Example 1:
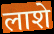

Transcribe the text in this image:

लाशे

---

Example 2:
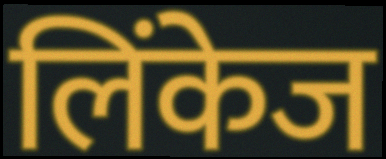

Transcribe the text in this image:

लिंकेज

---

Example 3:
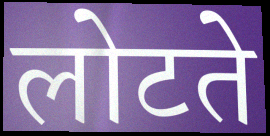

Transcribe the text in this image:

लोटते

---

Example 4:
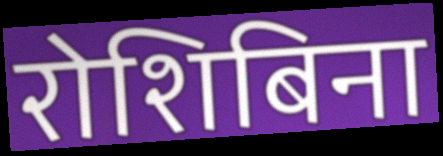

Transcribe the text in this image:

रोशिबिना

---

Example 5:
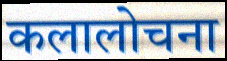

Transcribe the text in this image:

कलालोचना